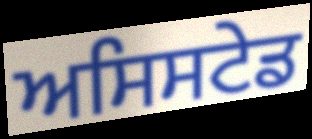
ਅਸਿਸਟੇਡ